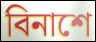
বিনাশে